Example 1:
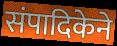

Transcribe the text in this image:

संपादिकेने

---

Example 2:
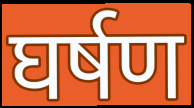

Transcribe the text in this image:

घर्षण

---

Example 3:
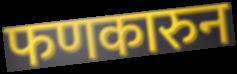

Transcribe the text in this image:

फणकारुन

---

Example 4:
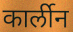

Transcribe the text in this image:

कार्लीन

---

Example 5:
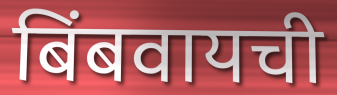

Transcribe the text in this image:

बिंबवायची